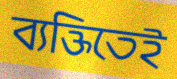
ব্যক্তিতেই